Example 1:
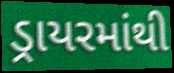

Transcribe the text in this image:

ડ્રાયરમાંથી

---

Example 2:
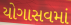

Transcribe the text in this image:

યોગાસવમાં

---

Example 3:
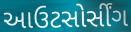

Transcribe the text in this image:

આઉટસોર્સીંગ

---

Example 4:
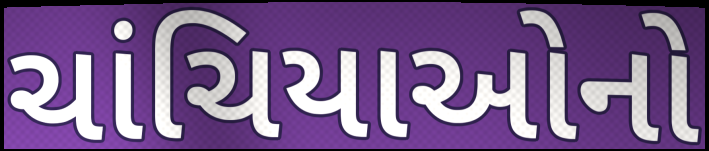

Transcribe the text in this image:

ચાંચિયાઓનો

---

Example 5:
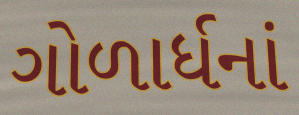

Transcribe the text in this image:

ગોળાર્ધનાં